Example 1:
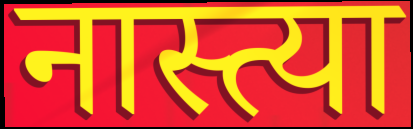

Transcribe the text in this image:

नास्त्या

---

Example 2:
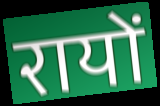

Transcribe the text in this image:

रायों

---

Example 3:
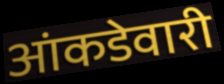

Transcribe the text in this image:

आंकडेवारी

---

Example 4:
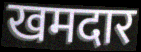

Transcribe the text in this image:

खमदार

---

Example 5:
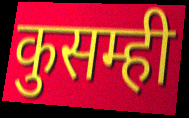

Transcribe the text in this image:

कुसम्ही